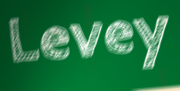
Levey